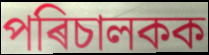
পৰিচালকক